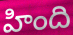
హింది